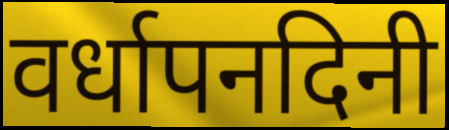
वर्धापनदिनी